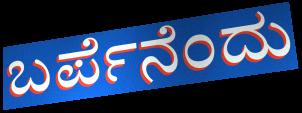
ಬರ್ಪೆನೆಂದು